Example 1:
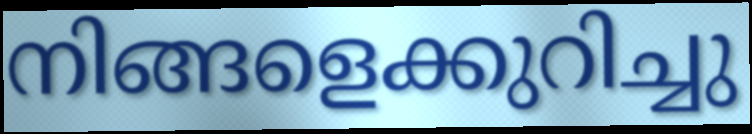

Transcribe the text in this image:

നിങ്ങളെക്കുറിച്ചു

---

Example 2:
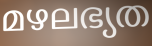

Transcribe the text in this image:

മഴലഭ്യത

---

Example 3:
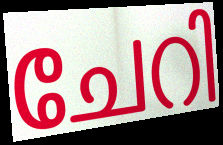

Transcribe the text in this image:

ചേറി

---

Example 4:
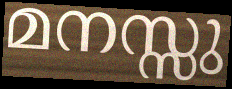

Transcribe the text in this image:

മനസ്സു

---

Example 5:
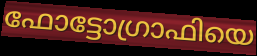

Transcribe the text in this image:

ഫോട്ടോഗ്രാഫിയെ